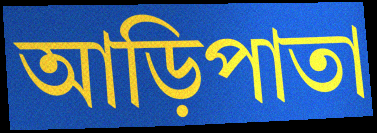
আড়িপাতা